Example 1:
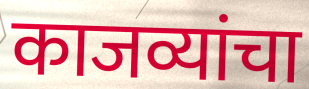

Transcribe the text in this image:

काजव्यांचा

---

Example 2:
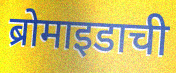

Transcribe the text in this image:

ब्रोमाइडाची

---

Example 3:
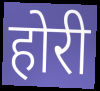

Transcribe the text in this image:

होरी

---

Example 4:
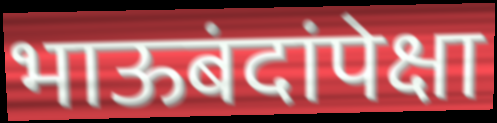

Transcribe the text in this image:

भाऊबंदांपेक्षा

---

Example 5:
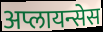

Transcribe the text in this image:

अप्लायन्सेस